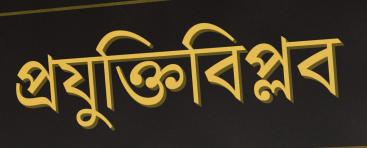
প্রযুক্তিবিপ্লব